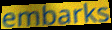
embarks